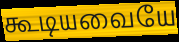
கூடியவையே